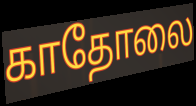
காதோலை